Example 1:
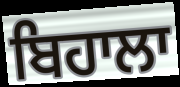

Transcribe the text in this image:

ਬਿਹਾਲਾ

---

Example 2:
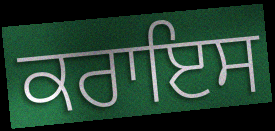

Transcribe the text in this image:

ਕਰਾਇਸ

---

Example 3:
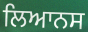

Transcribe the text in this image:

ਲਿਆਨਸ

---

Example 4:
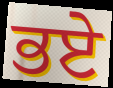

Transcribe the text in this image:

ਭਏ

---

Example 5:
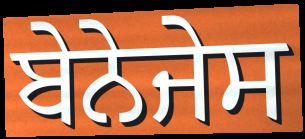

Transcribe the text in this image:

ਬੇਨੇਜੇਸ